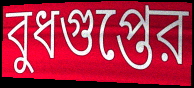
বুধগুপ্তের